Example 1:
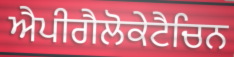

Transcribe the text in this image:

ਐਪੀਗੈਲੋਕੇਟੈਚਿਨ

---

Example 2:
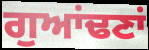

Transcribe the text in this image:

ਗੁਆਂਢਣਾਂ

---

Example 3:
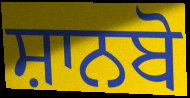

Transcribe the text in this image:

ਸ਼ਾਨਬੋ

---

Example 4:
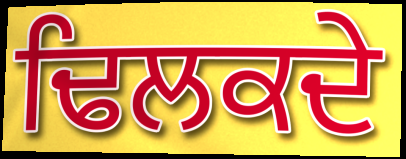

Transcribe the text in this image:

ਢਿਲਕਦੇ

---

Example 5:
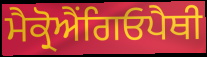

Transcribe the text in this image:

ਮੈਕ੍ਰੋਐਂਗਿਓਪੈਥੀ